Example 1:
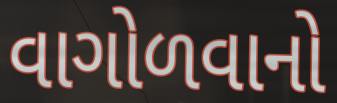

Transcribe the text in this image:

વાગોળવાનો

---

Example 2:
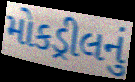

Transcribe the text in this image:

મોકડ્રીલનું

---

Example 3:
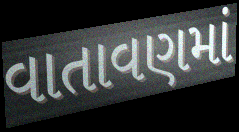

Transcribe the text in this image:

વાતાવણમાં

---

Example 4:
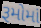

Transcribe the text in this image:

રૂમોમાં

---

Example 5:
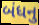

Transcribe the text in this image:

બંધનુ